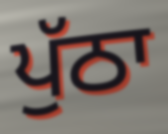
ਪੁੱਠਾ